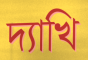
দ্যাখি